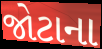
જોટાના